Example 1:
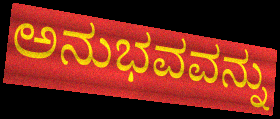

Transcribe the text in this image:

ಅನುಭವವನ್ನು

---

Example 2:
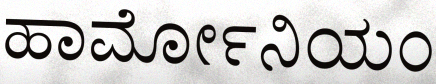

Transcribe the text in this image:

ಹಾರ್ಮೋನಿಯಂ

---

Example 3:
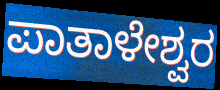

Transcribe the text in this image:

ಪಾತಾಳೇಶ್ವರ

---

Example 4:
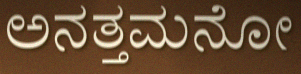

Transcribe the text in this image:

ಅನತ್ತಮನೋ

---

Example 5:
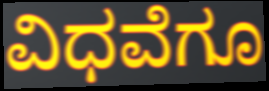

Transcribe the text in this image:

ವಿಧವೆಗೂ